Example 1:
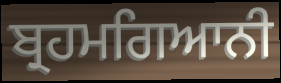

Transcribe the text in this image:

ਬ੍ਰਹਮਗਿਆਨੀ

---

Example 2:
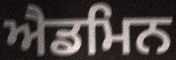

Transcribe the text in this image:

ਐਡਮਿਨ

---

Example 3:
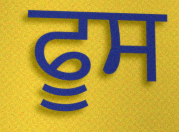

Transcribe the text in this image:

ਫੂਸ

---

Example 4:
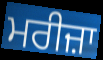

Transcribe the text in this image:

ਮਰੀਜ਼ਾ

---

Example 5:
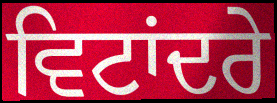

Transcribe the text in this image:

ਵਿਟਾਂਦਰੇ